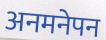
अनमनेपन